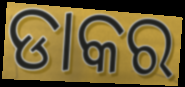
ଡାକର